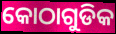
କୋଠାଗୁଡିକ